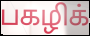
பகழிக்